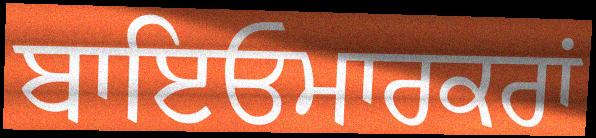
ਬਾਇਓਮਾਰਕਰਾਂ